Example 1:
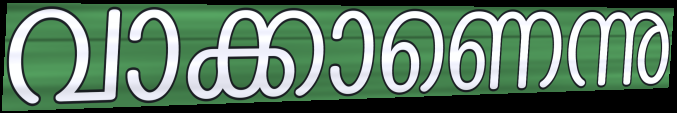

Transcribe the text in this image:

വാക്കാണെന്നു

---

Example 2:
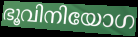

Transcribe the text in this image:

ഭൂവിനിയോഗ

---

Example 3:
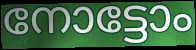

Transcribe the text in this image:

നോട്ടോം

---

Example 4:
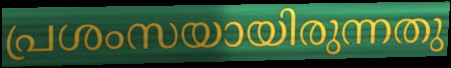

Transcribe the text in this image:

പ്രശംസയായിരുന്നതു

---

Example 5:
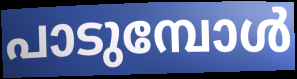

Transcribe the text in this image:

പാടുമ്പോൾ